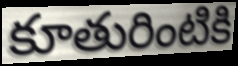
కూతురింటికి